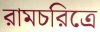
রামচরিত্রে